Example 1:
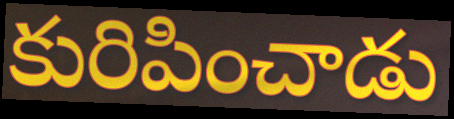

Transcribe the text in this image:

కురిపించాడు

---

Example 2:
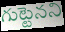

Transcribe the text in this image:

గుట్టెనని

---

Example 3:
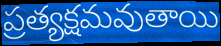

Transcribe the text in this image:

ప్రత్యక్షమవుతాయి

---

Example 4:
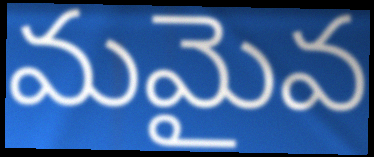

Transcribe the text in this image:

మమైవ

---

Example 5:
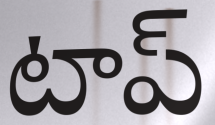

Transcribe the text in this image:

టాప్